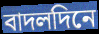
বাদলদিনে